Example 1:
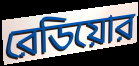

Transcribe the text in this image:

রেডিয়োর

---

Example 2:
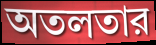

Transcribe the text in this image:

অতলতার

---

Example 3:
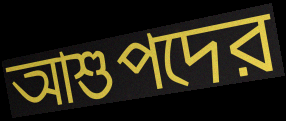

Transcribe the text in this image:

আশুপদের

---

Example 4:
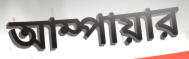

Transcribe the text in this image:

আম্পায়ার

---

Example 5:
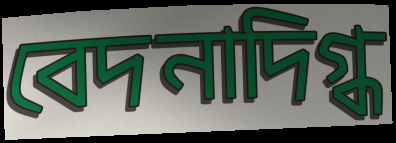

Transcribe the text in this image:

বেদনাদিগ্ধ